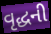
વૃદ્ધની